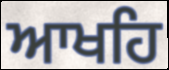
ਆਖਹਿ